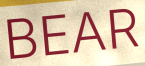
BEAR